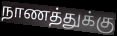
நாணத்துக்கு